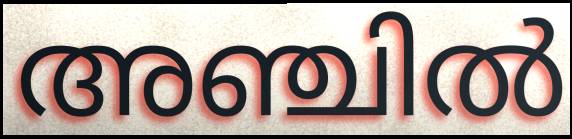
അഞ്ചിൽ